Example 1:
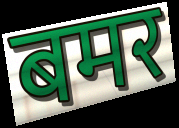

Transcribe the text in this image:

बमर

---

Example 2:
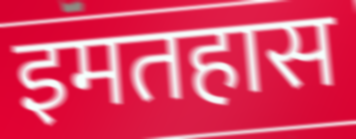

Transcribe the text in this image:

इमतहास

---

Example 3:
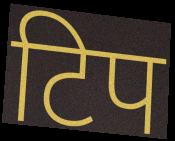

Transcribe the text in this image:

टिप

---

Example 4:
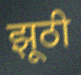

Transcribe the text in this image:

झूठी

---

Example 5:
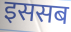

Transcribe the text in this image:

इससब